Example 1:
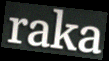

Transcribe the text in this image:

raka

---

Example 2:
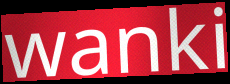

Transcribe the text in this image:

wanki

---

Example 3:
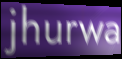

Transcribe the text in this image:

jhurwa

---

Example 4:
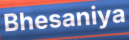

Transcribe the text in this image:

Bhesaniya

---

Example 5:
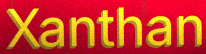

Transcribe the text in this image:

Xanthan